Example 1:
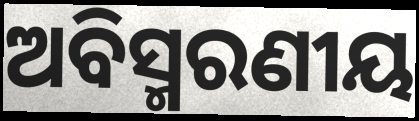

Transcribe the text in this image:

ଅବିସ୍ମରଣୀୟ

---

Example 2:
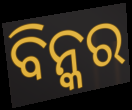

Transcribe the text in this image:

ବିନ୍କର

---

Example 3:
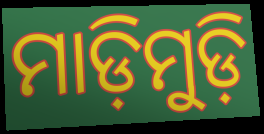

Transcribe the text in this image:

ମାଡ଼ିମୁଡ଼ି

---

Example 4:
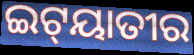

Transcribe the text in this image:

ଇଟ୍‍ୟାତୀର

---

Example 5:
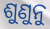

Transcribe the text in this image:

ଶୁଣୁନୁ